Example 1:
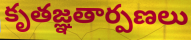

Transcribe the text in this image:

కృతజ్ఞతార్పణలు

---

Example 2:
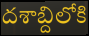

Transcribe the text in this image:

దశాబ్దిలోకి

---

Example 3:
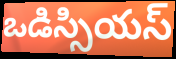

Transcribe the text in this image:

ఒడిస్సియస్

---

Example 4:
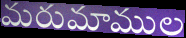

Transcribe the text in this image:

మరుమాముల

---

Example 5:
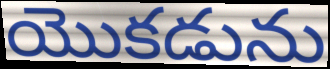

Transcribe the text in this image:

యొకడును